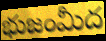
భుజంమీద